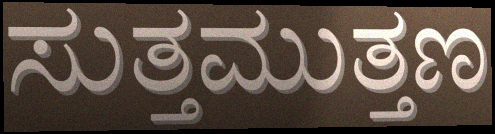
ಸುತ್ತಮುತ್ತಣ